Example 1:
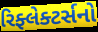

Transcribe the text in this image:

રિફ્લેક્ટર્સનો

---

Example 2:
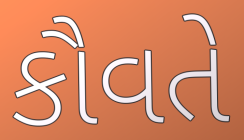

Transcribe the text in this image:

કૌવતે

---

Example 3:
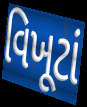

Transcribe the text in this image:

વિખૂટાં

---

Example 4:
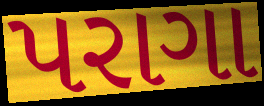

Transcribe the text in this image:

પરાગા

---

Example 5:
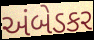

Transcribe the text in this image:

અંબેડકર